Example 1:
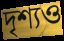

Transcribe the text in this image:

দৃশ্যও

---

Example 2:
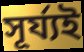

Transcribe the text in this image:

সূৰ্য্যই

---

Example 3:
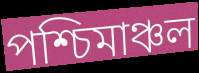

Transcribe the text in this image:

পশ্চিমাঞ্চল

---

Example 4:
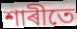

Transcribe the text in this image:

শাৰীতে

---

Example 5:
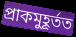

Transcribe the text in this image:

প্ৰাকমুহূৰ্তত